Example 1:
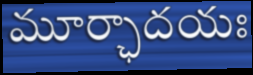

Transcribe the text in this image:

మూర్ఛాదయః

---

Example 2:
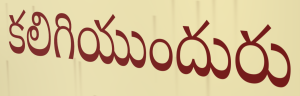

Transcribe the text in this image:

కలిగియుందురు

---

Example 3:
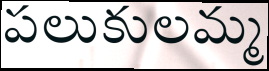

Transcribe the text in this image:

పలుకులమ్మ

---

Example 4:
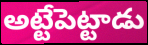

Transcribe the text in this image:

అట్టేపెట్టాడు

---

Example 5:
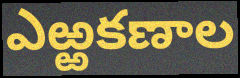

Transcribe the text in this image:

ఎఱ్ఱకణాల